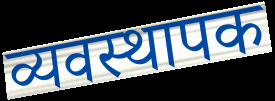
व्यवस्थापक